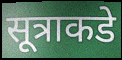
सूत्राकडे